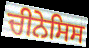
ਚੀਨੇਸਿਸ